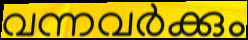
വന്നവർക്കും